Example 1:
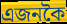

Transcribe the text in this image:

এজনকৈ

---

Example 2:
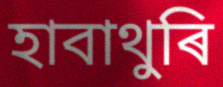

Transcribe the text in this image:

হাবাথুৰি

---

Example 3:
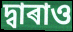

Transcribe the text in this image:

দ্বাৰাও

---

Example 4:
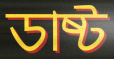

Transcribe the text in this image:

ডাষ্ট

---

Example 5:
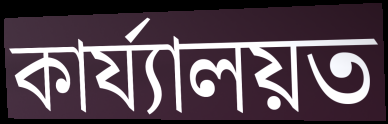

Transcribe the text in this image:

কাৰ্য্যালয়ত